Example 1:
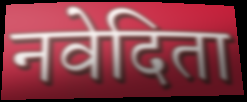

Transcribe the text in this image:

नवेदिता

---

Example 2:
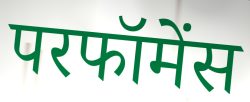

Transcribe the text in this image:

परफॉमेंस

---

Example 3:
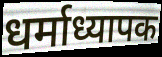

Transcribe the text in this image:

धर्माध्यापक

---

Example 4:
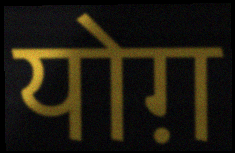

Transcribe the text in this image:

योग़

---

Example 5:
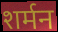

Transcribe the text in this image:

शर्मन